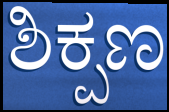
ಶಿಕ್ಪಣ